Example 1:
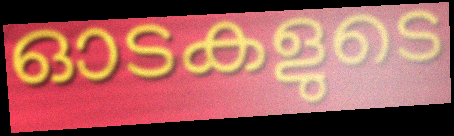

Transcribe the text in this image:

ഓടകളുടെ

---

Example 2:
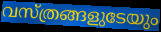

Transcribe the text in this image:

വസ്ത്രങ്ങളുടേയും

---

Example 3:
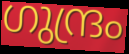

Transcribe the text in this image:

ഗുന്ദ്രം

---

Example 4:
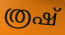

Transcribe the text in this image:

ത്രഷ്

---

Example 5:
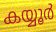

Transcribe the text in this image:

കയ്യൂർ